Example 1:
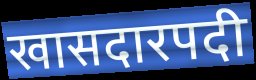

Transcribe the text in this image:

खासदारपदी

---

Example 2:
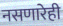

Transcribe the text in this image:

नसणारेही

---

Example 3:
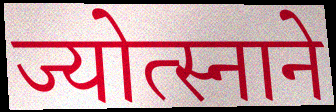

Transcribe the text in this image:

ज्योत्स्नाने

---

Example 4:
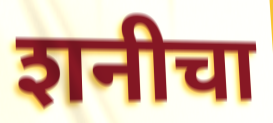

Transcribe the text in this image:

शनीचा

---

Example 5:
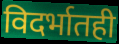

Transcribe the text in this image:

विदर्भातही